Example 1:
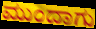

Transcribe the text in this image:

ಮುಂದಾಗು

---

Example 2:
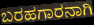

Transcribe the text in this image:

ಬರಹಗಾರನಾಗಿ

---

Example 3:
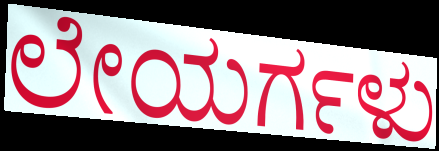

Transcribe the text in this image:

ಲೇಯರ್ಗಳು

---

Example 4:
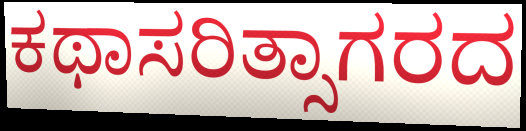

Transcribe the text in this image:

ಕಥಾಸರಿತ್ಸಾಗರದ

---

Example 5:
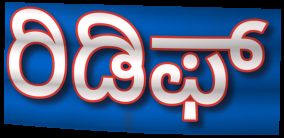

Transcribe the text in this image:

ರಿಡಿಫ್